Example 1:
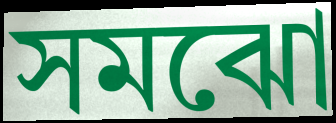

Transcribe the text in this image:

সমঝো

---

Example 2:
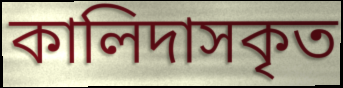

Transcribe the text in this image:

কালিদাসকৃত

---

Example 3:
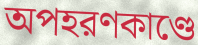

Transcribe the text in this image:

অপহরণকাণ্ডে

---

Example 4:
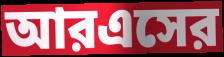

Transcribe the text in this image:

আরএসের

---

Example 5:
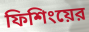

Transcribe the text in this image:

ফিশিংয়ের